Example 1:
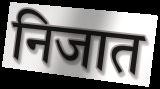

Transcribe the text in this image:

निजात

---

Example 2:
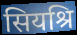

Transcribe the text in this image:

सियश्रि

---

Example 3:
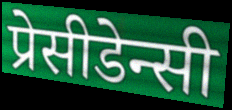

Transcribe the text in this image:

प्रेसीडेन्सी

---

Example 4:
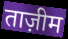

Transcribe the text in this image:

ताज़ीम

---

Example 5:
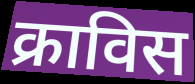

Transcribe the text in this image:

क्राविस